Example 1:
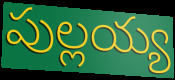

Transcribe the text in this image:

పుల్లయ్య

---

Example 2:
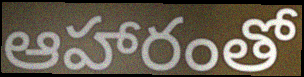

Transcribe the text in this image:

ఆహారంతో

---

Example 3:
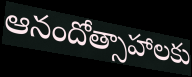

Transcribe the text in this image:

ఆనందోత్సాహాలకు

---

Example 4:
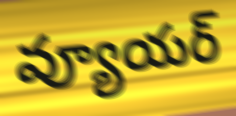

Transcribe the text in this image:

వ్యూయర్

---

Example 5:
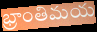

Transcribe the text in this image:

భ్రాంతిమయ